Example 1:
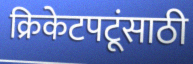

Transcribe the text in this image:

क्रिकेटपटूंसाठी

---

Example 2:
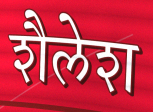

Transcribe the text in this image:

शैलेश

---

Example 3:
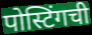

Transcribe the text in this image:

पोस्टिंगची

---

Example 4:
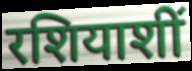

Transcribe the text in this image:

रशियाशीं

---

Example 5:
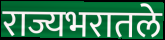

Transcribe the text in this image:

राज्यभरातले